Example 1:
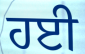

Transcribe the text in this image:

ਹਈ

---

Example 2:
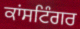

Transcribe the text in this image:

ਕਾਂਸਟਿੰਗਰ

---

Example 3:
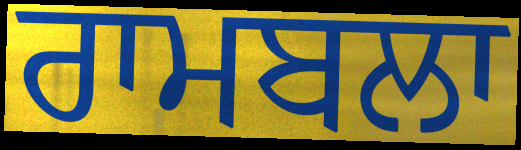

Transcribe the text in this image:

ਰਾਮਬਲਾ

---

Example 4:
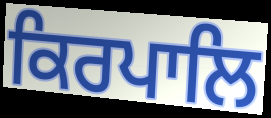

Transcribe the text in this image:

ਕਿਰਪਾਲਿ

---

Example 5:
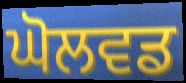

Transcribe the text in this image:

ਘੋਲਵਡ